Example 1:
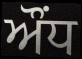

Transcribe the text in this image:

ਔਂਧ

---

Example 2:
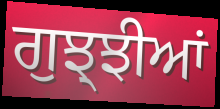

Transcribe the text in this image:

ਗੁਝ੍ਝੀਆਂ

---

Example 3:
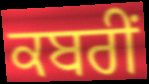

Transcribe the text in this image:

ਕਬਰੀਂ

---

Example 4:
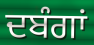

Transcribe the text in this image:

ਦਬੰਗਾਂ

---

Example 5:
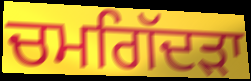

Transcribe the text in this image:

ਚਮਗਿੱਦੜਾ